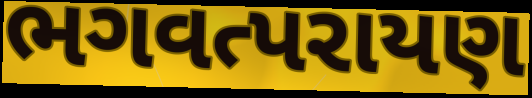
ભગવત્પરાયણ